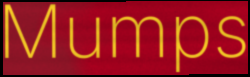
Mumps